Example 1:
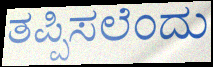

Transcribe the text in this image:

ತಪ್ಪಿಸಲೆಂದು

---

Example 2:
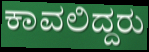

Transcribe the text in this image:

ಕಾವಲಿದ್ದರು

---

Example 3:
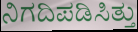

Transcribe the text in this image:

ನಿಗದಿಪಡಿಸಿತ್ತು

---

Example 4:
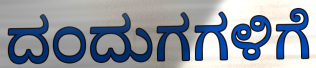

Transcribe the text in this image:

ದಂದುಗಗಳಿಗೆ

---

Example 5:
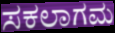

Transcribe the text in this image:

ಸಕಲಾಗಮ